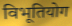
विभूतियोग